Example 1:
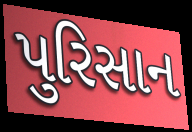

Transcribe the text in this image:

પુરિસાન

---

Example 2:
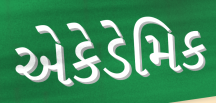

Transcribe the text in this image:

એકેડેમિક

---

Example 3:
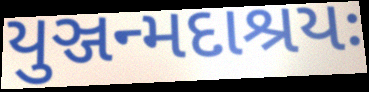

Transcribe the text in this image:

યુઞ્જન્મદાશ્રયઃ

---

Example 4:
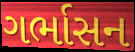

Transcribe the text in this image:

ગર્ભાસન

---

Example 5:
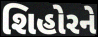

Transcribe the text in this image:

શિહોરને